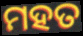
ମହତ